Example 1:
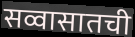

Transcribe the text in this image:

सव्वासातची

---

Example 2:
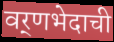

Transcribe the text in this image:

वर्णभेदाची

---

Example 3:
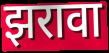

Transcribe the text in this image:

झरावा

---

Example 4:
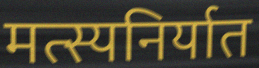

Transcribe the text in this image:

मत्स्यनिर्यात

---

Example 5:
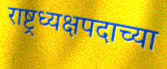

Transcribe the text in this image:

राष्ट्रध्यक्षपदाच्या